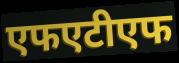
एफएटीएफ